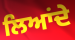
ਲਿਆਂਦੇ